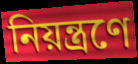
নিয়ন্ত্রণে